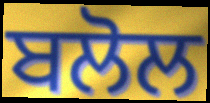
ਬਲੋਲ